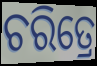
ଚରିତ୍ରେ